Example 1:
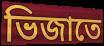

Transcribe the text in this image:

ভিজাতে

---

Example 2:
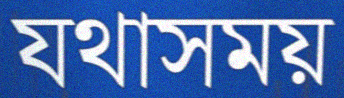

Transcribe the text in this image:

যথাসময়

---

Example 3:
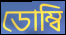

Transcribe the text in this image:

ডোম্বি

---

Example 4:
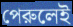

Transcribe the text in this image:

পেরুলেই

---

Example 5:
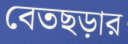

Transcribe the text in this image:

বেতছড়ার